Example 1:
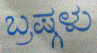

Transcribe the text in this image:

ಬ್ರಷ್ಗಳು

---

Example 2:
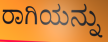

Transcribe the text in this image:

ರಾಗಿಯನ್ನು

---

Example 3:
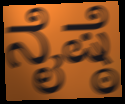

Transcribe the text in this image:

ನೈಷ್ಠೆ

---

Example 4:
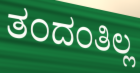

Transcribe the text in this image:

ತಂದಂತಿಲ್ಲ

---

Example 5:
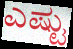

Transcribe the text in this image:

ಎಷ್ಟು